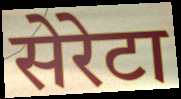
सेरेटा